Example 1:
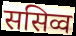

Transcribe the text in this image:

ससिव्व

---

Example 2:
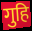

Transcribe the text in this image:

गुहि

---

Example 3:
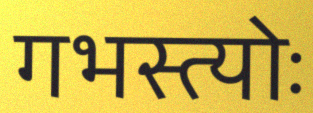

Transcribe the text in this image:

गभस्त्योः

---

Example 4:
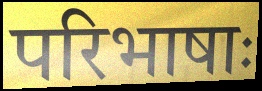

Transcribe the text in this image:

परिभाषाः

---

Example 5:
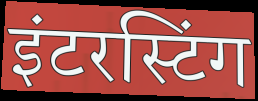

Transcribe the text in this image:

इंटरस्टिंग